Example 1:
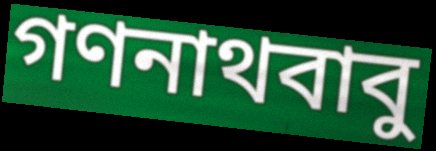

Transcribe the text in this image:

গণনাথবাবু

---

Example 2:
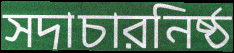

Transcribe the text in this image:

সদাচারনিষ্ঠ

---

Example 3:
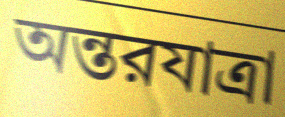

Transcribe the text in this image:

অন্তরযাত্রা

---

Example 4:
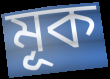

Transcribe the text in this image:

মূক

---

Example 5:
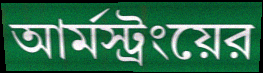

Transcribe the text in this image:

আর্মস্ট্রংয়ের